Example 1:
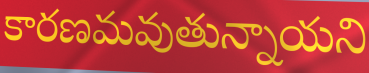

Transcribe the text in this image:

కారణమవుతున్నాయని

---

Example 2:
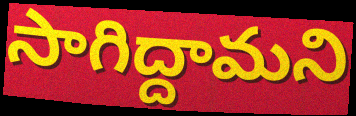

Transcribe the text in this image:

సాగిద్దామని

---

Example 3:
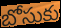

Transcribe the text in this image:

బోసుకు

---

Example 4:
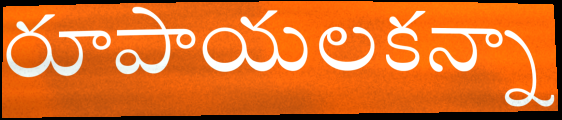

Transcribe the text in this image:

రూపాయలకన్నా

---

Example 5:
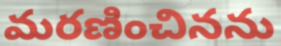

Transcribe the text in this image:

మరణించినను